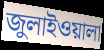
জুলাইওয়ালা